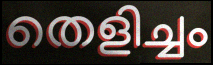
തെളിച്ചം